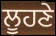
ਲੂਹਣੇ